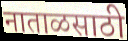
नाताळसाठी